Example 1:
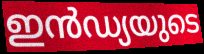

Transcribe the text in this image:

ഇൻഡ്യയുടെ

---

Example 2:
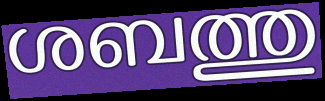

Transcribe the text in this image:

ശബത്തു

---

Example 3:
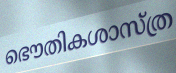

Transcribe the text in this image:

ഭൌതികശാസ്ത്ര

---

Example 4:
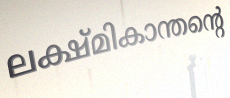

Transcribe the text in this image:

ലക്ഷ്മികാന്തന്റെ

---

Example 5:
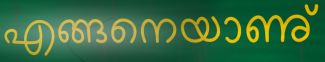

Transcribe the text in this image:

എങ്ങനെയാണു്